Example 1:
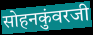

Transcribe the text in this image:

सोहनकुंवरजी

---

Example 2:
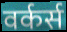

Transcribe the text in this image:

वर्कर्स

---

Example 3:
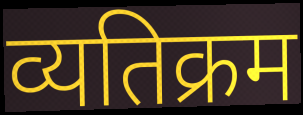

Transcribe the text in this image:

व्यतिक्रम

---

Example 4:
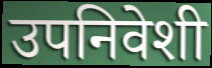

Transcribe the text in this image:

उपनिवेशी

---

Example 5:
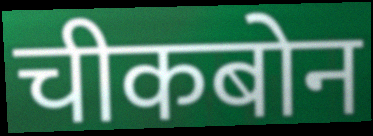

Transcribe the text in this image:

चीकबोन